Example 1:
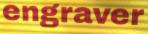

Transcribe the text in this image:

engraver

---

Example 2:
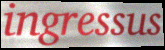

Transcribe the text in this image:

ingressus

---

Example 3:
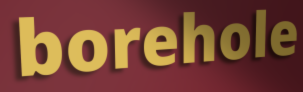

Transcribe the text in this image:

borehole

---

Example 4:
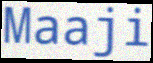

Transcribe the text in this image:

Maaji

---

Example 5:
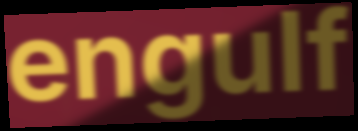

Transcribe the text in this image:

engulf